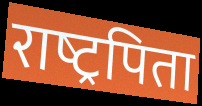
राष्ट्रपिता